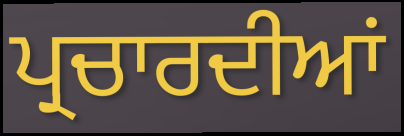
ਪ੍ਰਚਾਰਦੀਆਂ